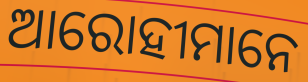
ଆରୋହୀମାନେ